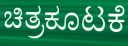
ಚಿತ್ರಕೂಟಕೆ